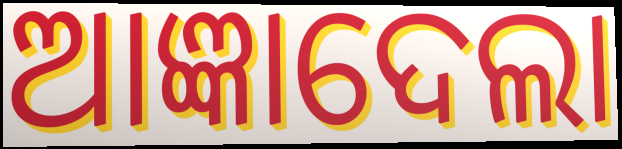
ଆଜ୍ଞାଦେଲା